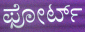
ಫೋರ್ಟ್